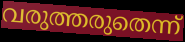
വരുത്തരുതെന്ന്